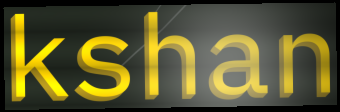
kshan